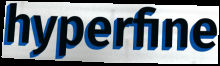
hyperfine